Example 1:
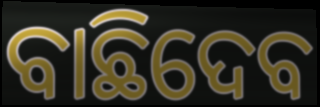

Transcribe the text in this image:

ବାଛିଦେବ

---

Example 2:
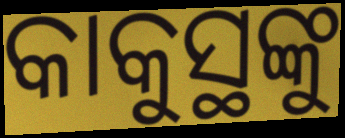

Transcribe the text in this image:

କାକୁସ୍ଥଙ୍କୁ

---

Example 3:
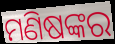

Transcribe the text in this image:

ମଣିଷଙ୍କର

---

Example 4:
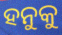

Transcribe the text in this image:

ହନୁକୁ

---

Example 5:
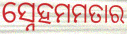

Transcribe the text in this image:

ସ୍ନେହମମତାର